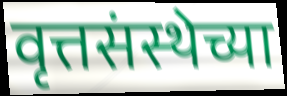
वृत्तसंस्थेच्या